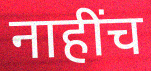
नाहींच